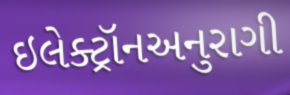
ઇલેક્ટ્રૉનઅનુરાગી